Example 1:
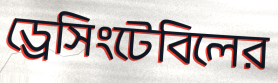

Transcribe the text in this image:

ড্রেসিংটেবিলের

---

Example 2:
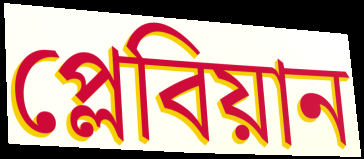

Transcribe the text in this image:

প্লেবিয়ান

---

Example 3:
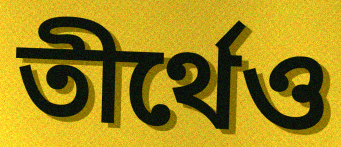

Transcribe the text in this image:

তীর্থেও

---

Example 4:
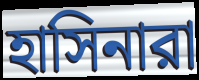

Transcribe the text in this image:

হাসিনারা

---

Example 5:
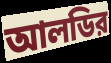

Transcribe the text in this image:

আলডির